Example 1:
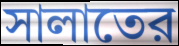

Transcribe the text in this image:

সালাতের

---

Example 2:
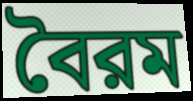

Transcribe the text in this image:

বৈরম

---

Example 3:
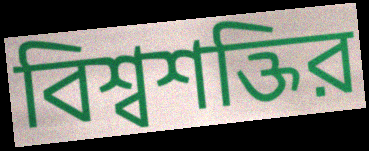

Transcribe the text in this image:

বিশ্বশক্তির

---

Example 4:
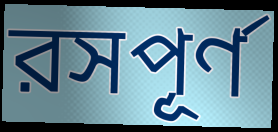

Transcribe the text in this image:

রসপূর্ণ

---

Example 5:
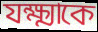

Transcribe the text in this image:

যক্ষ্মাকে